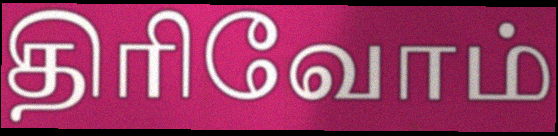
திரிவோம்